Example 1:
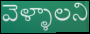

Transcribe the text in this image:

వెళ్ళాలని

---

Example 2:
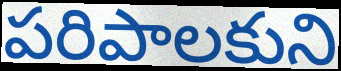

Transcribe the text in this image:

పరిపాలకుని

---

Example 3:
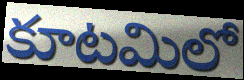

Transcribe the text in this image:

కూటమిలో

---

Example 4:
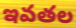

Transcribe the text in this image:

ఇవతల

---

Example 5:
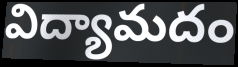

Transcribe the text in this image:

విద్యామదం